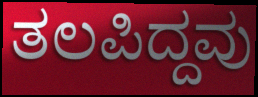
ತಲಪಿದ್ದವು